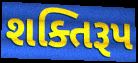
શક્તિરૂપ